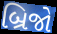
બ્રિજો